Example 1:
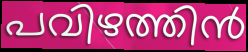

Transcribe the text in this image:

പവിഴത്തിൻ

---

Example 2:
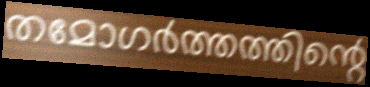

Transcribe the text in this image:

തമോഗർത്തത്തിന്റെ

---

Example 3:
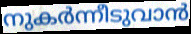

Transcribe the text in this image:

നുകർന്നീടുവാൻ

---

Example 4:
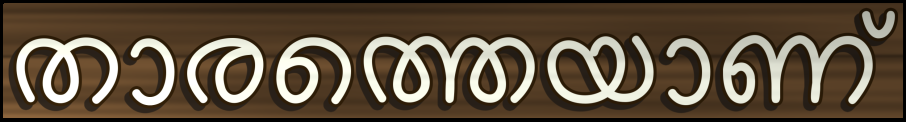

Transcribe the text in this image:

താരത്തെയാണ്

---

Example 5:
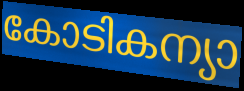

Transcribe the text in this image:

കോടികന്യാ